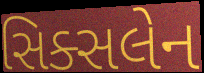
સિક્સલેન